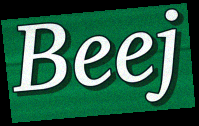
Beej